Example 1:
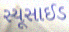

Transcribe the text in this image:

સ્યૂસાઈડ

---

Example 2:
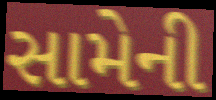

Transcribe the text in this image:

સામેની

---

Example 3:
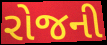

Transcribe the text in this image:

રોજની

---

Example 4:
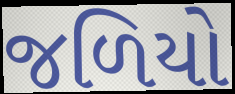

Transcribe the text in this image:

જળિયો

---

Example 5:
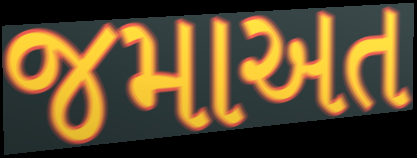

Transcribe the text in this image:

જમાઅત